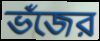
ভঁজের